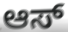
ಆಸ್